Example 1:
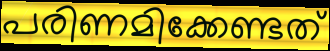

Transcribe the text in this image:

പരിണമിക്കേണ്ടത്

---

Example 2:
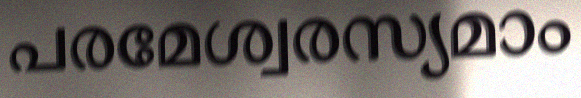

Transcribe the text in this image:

പരമേശ്വരസ്യമാം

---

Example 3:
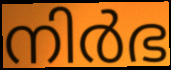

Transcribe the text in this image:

നിർഭ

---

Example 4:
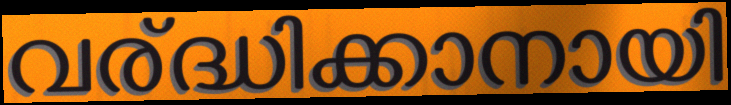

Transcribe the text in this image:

വര്ദ്ധിക്കാനായി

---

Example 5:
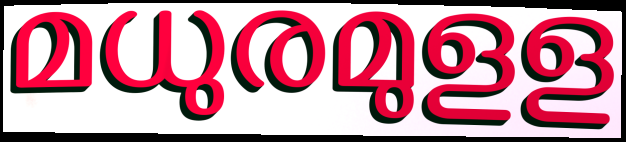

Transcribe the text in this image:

മധുരമുളള